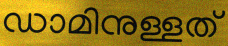
ഡാമിനുള്ളത്